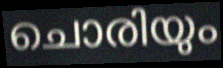
ചൊരിയും